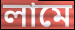
লামে